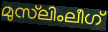
മുസ്‌ലിംലീഗ്